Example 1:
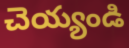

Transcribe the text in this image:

చెయ్యండి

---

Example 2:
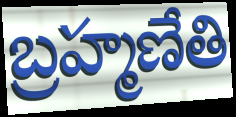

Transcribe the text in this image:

బ్రహ్మణేతి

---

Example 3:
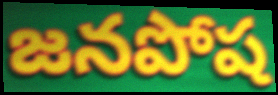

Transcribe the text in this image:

జనపోష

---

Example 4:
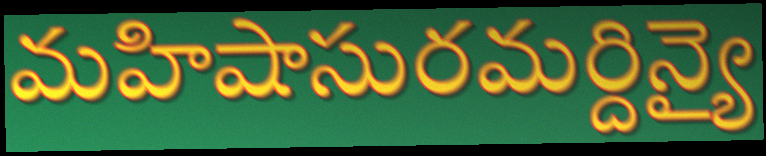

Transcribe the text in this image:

మహిషాసురమర్దిన్యై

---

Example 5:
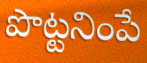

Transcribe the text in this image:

పొట్టనింపే